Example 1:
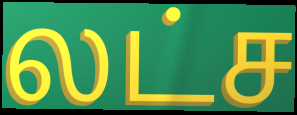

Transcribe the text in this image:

லட்ச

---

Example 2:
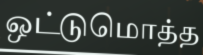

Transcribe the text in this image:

ஒட்டுமொத்த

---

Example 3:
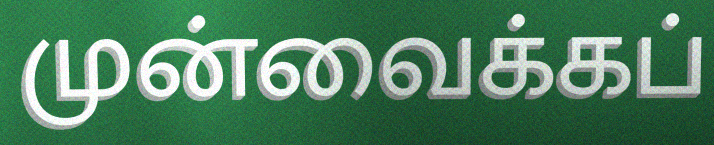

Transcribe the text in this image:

முன்வைக்கப்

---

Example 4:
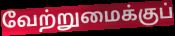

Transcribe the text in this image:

வேற்றுமைக்குப்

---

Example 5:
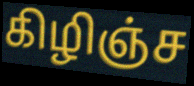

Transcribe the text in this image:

கிழிஞ்ச